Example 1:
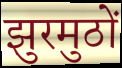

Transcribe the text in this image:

झुरमुठों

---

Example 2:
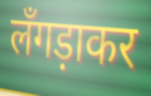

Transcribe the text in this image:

लँगड़ाकर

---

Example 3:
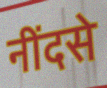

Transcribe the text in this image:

नींदसे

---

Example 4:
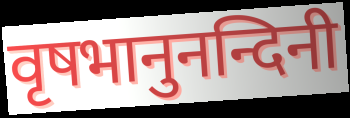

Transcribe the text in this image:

वृषभानुनन्दिनी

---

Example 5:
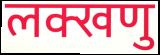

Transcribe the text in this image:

लक्खणु